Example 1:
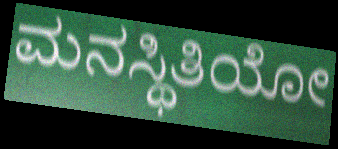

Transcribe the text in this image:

ಮನಸ್ಥಿತಿಯೋ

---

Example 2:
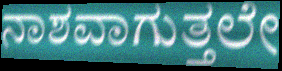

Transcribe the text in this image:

ನಾಶವಾಗುತ್ತಲೇ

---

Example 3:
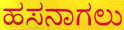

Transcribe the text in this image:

ಹಸನಾಗಲು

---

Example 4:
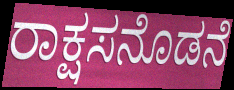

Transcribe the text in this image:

ರಾಕ್ಷಸನೊಡನೆ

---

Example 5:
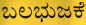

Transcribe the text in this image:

ಬಲಭುಜಕೆ